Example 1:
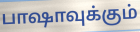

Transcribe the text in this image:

பாஷாவுக்கும்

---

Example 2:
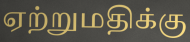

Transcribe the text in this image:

ஏற்றுமதிக்கு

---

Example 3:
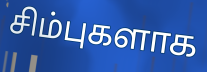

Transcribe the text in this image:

சிம்புகளாக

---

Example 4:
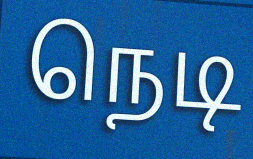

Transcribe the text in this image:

நெடி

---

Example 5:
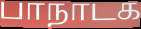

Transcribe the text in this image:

பாநாடக